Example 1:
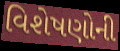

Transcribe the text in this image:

વિશેષણોની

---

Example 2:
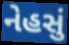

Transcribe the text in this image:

નેહસું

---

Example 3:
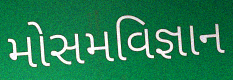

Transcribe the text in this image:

મોસમવિજ્ઞાન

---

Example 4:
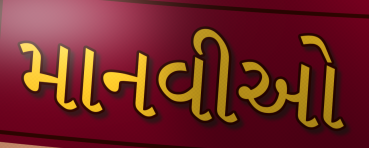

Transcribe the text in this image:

માનવીઓ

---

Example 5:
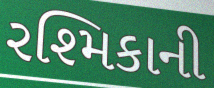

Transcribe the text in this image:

રશ્મિકાની